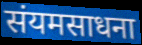
संयमसाधना